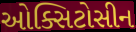
ઓક્સિટોસીન